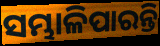
ସମ୍ଭାଳିପାରନ୍ତି